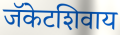
जॅकेटशिवाय